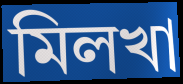
মিলখা